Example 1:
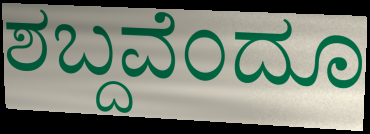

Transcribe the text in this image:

ಶಬ್ದವೆಂದೂ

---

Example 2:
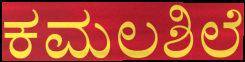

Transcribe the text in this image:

ಕಮಲಶಿಲೆ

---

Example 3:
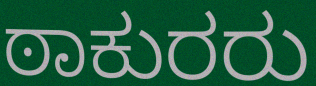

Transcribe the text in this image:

ಠಾಕುರರು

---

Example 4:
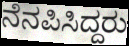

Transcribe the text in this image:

ನೆನಪಿಸಿದ್ದರು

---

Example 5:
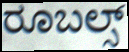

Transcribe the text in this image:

ರೂಬಲ್ಸ್